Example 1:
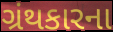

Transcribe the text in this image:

ગ્રંથકારના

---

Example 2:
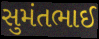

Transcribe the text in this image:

સુમંતભાઈ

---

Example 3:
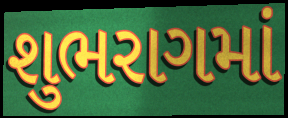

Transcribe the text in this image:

શુભરાગમાં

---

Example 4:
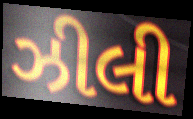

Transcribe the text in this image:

ઝીલી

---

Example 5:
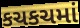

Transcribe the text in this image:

કચકચમાં